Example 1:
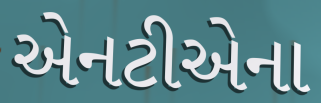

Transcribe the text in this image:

એનટીએના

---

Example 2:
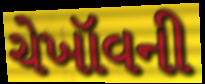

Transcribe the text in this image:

ચેખૉવની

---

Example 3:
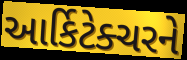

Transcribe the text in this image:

આર્કિટેક્ચરને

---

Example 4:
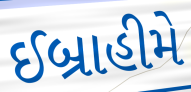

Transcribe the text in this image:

ઈબ્રાહીમે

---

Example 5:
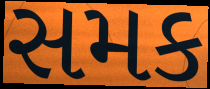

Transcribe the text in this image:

સમક